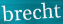
brecht